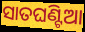
ସାତଘଣ୍ଟିଆ